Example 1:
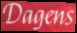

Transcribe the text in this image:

Dagens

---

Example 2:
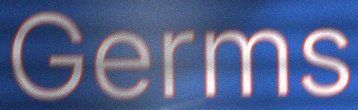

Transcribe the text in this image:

Germs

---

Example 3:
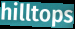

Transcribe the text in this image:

hilltops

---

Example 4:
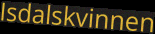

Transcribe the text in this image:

Isdalskvinnen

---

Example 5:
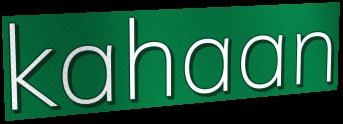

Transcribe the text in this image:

kahaan